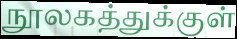
நூலகத்துக்குள்